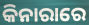
କିନାରାରେ